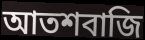
আতশবাজি